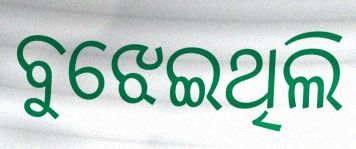
ବୁଝେଇଥିଲି